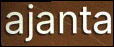
ajanta